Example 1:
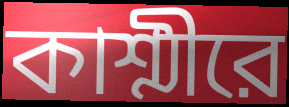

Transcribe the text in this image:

কাশ্মীরে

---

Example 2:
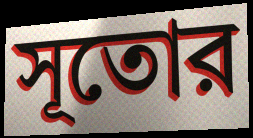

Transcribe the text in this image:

সূতোর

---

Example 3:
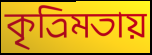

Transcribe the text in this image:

কৃত্রিমতায়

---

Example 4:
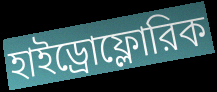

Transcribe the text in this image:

হাইড্রোফ্লোরিক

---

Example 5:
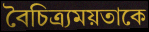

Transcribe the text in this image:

বৈচিত্র্যময়তাকে